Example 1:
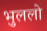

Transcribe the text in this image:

भुललो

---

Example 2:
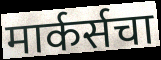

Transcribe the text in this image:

मार्कर्सचा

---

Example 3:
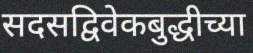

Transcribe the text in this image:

सदसद्विवेकबुद्धीच्या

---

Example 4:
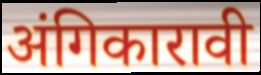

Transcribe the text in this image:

अंगिकारावी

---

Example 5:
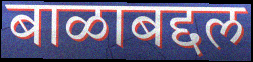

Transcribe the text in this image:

बाळाबद्दल